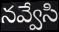
నవ్వేసి